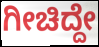
ಗೀಚಿದ್ದೇ